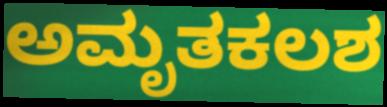
ಅಮೃತಕಲಶ